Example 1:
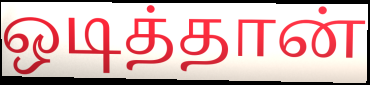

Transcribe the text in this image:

ஒடித்தான்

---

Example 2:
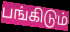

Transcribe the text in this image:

பங்கிடும்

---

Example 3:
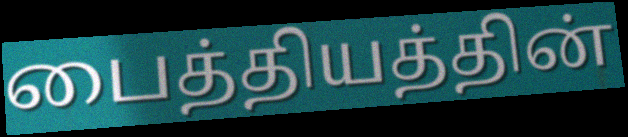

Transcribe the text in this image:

பைத்தியத்தின்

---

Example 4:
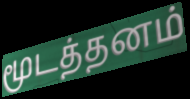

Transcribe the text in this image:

மூடத்தனம்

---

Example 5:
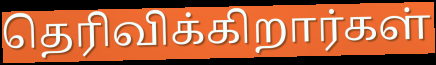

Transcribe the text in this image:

தெரிவிக்கிறார்கள்